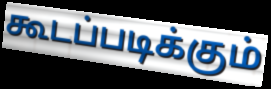
கூடப்படிக்கும்